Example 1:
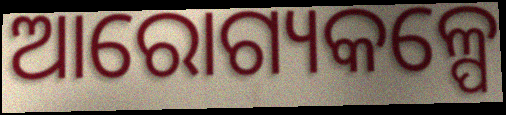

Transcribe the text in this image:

ଆରୋଗ୍ୟକଳ୍ପେ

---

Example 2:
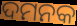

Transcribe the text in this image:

ଦମନକ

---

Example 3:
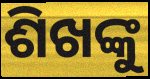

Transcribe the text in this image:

ଶିଖଙ୍କୁ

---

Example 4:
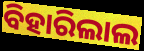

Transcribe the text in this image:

ବିହାରିଲାଲ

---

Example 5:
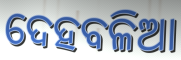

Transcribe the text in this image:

ଦେହବଳିଆ